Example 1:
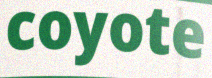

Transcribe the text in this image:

coyote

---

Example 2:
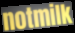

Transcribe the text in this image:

notmilk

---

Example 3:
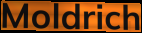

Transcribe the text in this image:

Moldrich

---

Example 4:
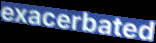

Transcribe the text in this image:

exacerbated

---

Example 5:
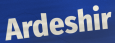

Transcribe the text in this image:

Ardeshir